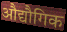
औद्यौगिक